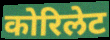
कोरिलेट